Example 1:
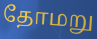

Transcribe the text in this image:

தோமறு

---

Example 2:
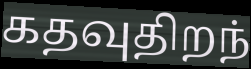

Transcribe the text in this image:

கதவுதிறந்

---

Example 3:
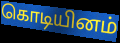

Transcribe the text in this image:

கொடியினம்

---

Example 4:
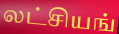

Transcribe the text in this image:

லட்சியங்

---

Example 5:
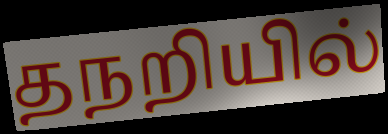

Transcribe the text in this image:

தநறியில்